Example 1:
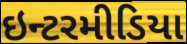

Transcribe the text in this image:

ઇન્ટરમીડિયા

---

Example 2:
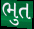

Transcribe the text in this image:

ભુત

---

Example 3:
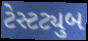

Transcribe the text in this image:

ટેસ્ટટ્યુબ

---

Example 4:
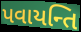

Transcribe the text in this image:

પવાયન્તિ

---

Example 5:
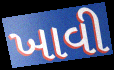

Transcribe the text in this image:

ખાવી